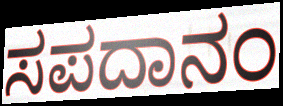
ಸಪದಾನಂ